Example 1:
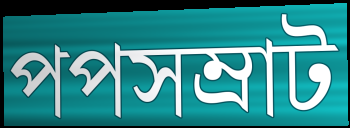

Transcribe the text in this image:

পপসম্রাট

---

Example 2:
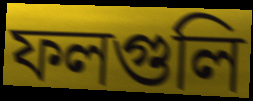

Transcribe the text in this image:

ফলগুলি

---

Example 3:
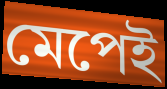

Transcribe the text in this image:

মেপেই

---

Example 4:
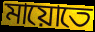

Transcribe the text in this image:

মায়োতে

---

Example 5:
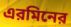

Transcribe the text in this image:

এরমিনের